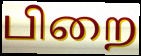
பிறை